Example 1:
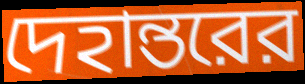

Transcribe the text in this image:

দেহান্তরের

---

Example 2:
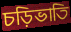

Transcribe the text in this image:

চড়িভাতি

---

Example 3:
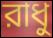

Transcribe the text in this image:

রাধু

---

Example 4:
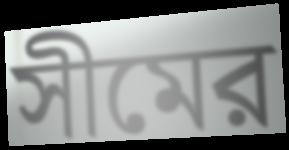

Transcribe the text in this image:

সীমের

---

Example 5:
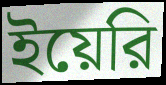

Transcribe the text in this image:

ইয়েরি